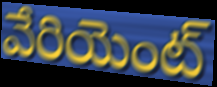
వేరియెంట్